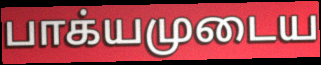
பாக்யமுடைய